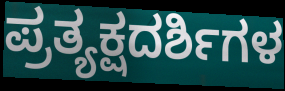
ಪ್ರತ್ಯಕ್ಷದರ್ಶಿಗಳ